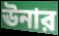
ঊনার